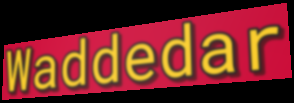
Waddedar